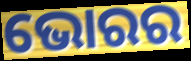
ଭୋରର